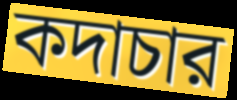
কদাচার